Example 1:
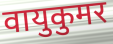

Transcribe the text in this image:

वायुकुमर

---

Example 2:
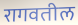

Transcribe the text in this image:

रागवतील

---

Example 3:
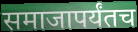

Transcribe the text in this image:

समाजापर्यंतच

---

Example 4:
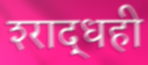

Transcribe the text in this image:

श्राद्धही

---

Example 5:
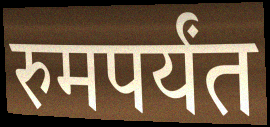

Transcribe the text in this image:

रुमपर्यंत